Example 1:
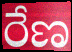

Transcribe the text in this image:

రేణ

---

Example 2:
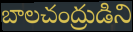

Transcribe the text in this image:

బాలచంద్రుడిని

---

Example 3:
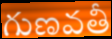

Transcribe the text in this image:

గుణవతీ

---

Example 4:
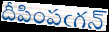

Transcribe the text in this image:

దీపింపఁగన్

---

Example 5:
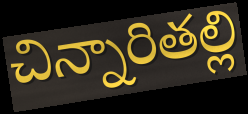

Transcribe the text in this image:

చిన్నారితల్లి